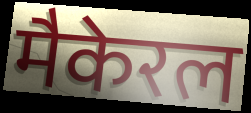
मैकेरल